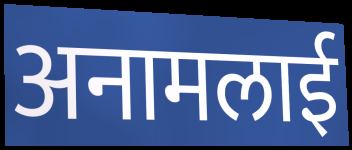
अनामलाई